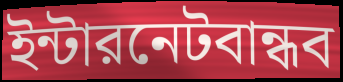
ইন্টারনেটবান্ধব